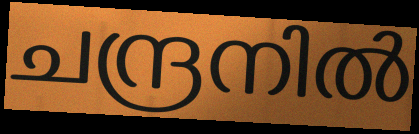
ചന്ദ്രനിൽ